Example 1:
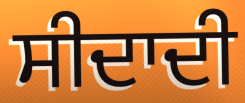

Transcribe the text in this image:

ਸੀਦਾਦੀ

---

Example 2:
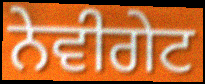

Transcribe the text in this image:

ਨੇਵੀਗੇਟ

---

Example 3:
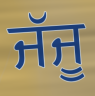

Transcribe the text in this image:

ਜੱਜੂ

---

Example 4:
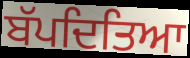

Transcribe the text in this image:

ਬੱਪਦਿਤਿਆ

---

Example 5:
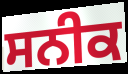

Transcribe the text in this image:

ਸਨੀਕ